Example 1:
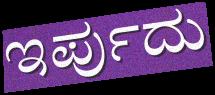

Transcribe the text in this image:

ಇರ್ಪುದು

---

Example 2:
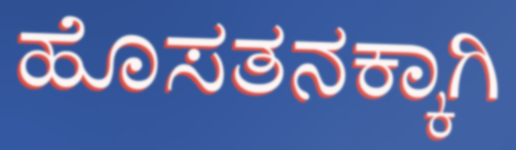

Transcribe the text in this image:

ಹೊಸತನಕ್ಕಾಗಿ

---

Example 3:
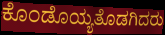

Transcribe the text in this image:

ಕೊಂಡೊಯ್ಯತೊಡಗಿದರು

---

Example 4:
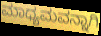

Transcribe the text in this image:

ಮಾಧ್ಯಮವನ್ನಾಗಿ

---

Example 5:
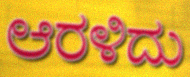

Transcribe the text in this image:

ಆರಳಿದು